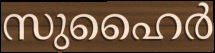
സുഹൈർ